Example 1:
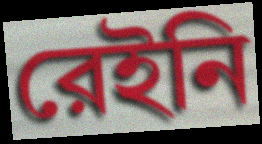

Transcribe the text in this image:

রেইনি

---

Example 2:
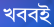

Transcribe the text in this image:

খববই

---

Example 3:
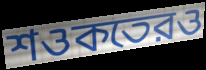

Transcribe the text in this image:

শওকতেরও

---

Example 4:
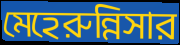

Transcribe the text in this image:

মেহেরুন্নিসার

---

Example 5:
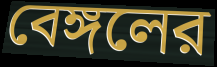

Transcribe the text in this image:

বেঙ্গলের